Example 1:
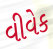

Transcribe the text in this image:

વીવેક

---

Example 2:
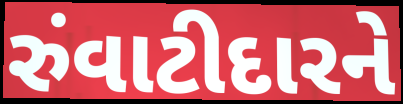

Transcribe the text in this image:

રુંવાટીદારને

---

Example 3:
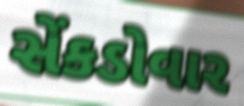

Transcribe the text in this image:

સેંકડોવાર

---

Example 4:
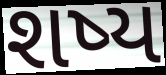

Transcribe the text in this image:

શષ્ય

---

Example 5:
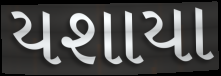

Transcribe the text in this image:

યશાયા